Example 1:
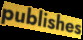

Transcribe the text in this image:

publishes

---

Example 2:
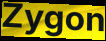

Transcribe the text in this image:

Zygon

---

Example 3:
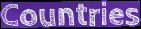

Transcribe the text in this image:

Countries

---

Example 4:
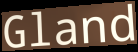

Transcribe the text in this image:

Gland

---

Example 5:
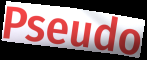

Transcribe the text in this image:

Pseudo